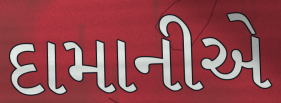
દામાનીએ